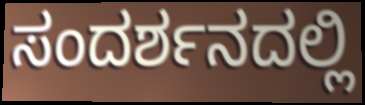
ಸಂದರ್ಶನದಲ್ಲಿ